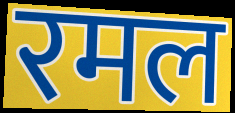
रमल